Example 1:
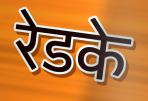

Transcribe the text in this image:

रेडके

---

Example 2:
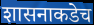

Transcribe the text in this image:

शासनाकडेच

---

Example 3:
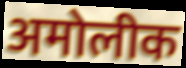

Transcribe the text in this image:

अमोलीक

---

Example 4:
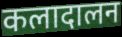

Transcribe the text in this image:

कलादालन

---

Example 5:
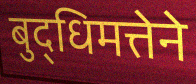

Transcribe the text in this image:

बुद्धिमत्तेने